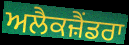
ਅਲੈਕਜ਼ੈਂਡਰਾ